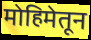
मोहिमेतून